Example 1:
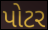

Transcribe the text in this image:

પોટર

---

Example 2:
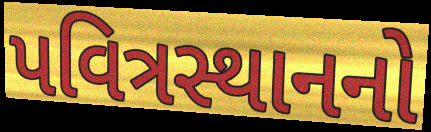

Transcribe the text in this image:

પવિત્રસ્થાનનો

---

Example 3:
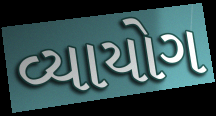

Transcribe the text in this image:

વ્યાયોગ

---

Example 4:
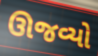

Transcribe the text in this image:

ઊજવ્યો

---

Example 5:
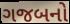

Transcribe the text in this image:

ગજબનો